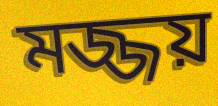
মজ্জয়